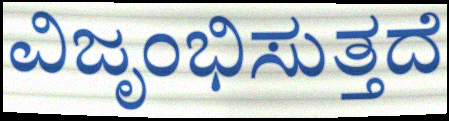
ವಿಜೃಂಭಿಸುತ್ತದೆ